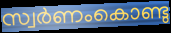
സ്വർണംകൊണ്ടു